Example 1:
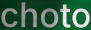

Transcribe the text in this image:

choto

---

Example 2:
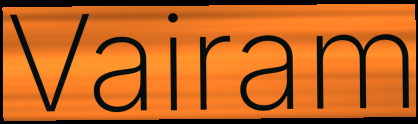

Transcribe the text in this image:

Vairam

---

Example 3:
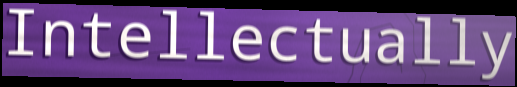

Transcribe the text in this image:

Intellectually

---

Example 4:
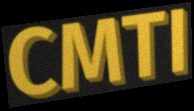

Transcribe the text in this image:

CMTI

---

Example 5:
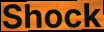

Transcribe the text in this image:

Shock